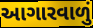
આગારવાળું